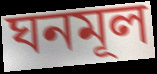
ঘনমূল